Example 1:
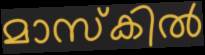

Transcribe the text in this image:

മാസ്കിൽ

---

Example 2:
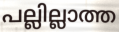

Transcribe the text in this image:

പല്ലില്ലാത്ത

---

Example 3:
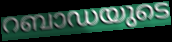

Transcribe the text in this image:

റബാഡയുടെ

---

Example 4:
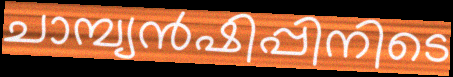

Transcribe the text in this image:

ചാമ്പ്യൻഷിപ്പിനിടെ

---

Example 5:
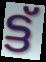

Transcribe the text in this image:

ട്ട്